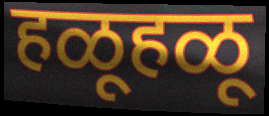
हळूहळू